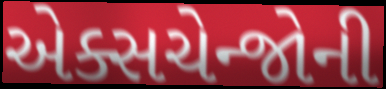
એક્સચેન્જોની